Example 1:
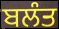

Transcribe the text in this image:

ਬਲੰਤ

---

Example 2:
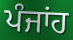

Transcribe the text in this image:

ਪੰਜਾਂਹ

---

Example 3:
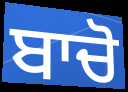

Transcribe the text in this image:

ਬਾਚੋ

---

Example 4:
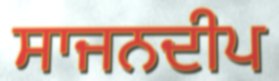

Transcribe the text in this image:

ਸਾਜਨਦੀਪ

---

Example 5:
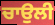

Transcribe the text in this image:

ਚਾਉਲੀ